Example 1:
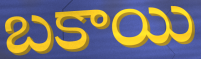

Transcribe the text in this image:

బకాయి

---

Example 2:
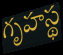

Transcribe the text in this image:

గృహస్థ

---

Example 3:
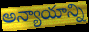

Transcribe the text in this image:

అన్యాయాన్ని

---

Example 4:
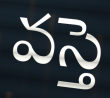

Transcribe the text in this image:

వస్తె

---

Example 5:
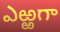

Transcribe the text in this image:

ఎఱ్ఱగా